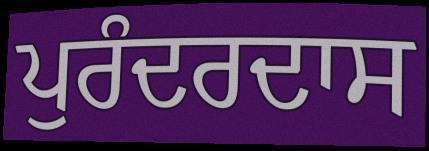
ਪੁਰੰਦਰਦਾਸ